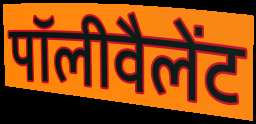
पॉलीवैलेंट